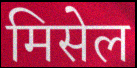
मिसेल